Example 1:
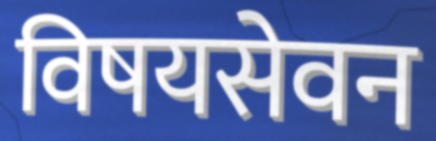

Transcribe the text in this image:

विषयसेवन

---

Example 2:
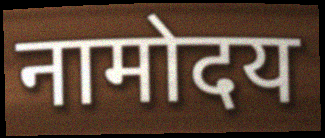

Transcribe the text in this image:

नामोदय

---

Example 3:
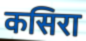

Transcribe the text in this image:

कसिरा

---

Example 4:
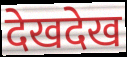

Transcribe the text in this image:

देखदेख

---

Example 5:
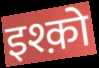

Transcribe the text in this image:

इश्क़ो